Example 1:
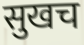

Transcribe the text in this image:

सुखच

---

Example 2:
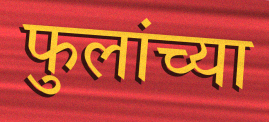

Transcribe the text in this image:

फुलांच्या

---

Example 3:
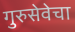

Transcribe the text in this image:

गुरुसेवेचा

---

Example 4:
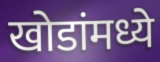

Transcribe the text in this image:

खोडांमध्ये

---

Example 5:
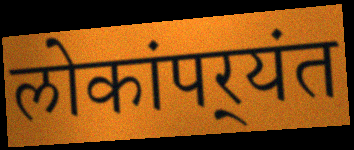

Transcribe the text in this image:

लोकांपर्यंत